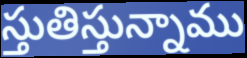
స్తుతిస్తున్నాము